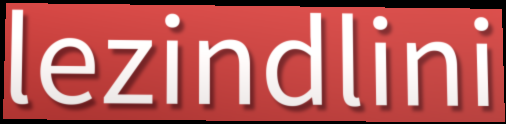
lezindlini